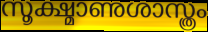
സൂക്ഷ്മാണുശാസ്ത്രം